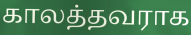
காலத்தவராக